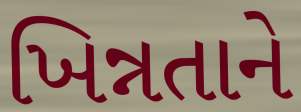
ખિન્નતાને